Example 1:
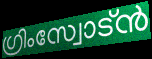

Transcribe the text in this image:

ഗ്രിംസ്വോട്ൻ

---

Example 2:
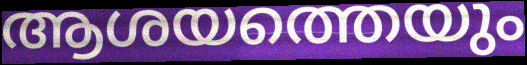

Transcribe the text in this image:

ആശയത്തെയും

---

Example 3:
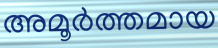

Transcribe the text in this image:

അമൂർത്തമായ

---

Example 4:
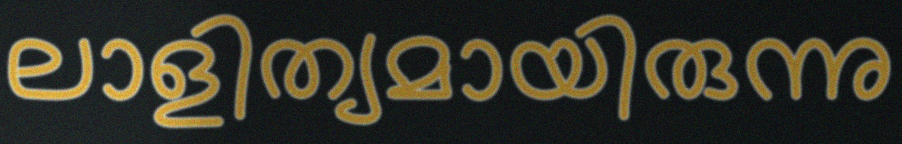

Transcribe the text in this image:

ലാളിത്യമായിരുന്നു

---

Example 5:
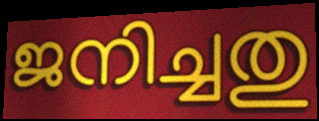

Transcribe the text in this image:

ജനിച്ചതു